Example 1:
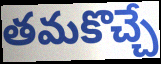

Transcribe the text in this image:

తమకొచ్చే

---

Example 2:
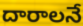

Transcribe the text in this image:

దారాలనే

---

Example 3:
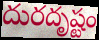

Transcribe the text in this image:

దురదృష్టం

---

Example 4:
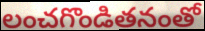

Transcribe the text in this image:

లంచగొండితనంతో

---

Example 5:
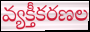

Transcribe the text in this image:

వ్యక్తీకరణల